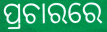
ପ୍ରଚାରରେ